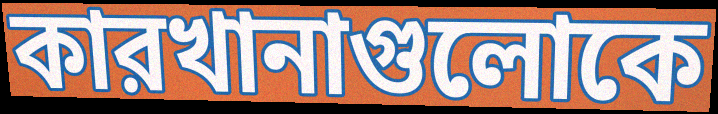
কারখানাগুলোকে